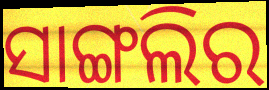
ସାଙ୍ଗଲିର